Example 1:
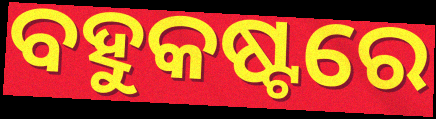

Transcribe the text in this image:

ବହୁକଷ୍ଟରେ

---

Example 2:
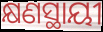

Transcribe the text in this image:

କ୍ଷଣସ୍ଥାୟୀ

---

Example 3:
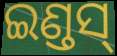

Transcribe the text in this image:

ଇଣ୍ଡସ୍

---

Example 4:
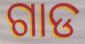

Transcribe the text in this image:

ଗାଡ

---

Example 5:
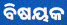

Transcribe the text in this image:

ବିଷୟକ